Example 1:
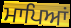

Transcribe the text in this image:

ਮਾਪਿਆਂ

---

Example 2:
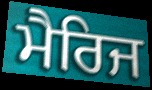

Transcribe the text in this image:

ਮੈਰਿਜ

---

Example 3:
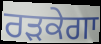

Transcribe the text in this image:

ਰੜਕੇਗਾ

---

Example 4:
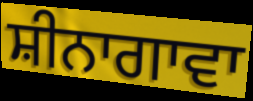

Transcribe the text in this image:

ਸ਼ੀਨਾਗਾਵਾ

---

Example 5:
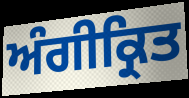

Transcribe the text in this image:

ਅੰਗੀਕ੍ਰਿਤ